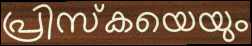
പ്രിസ്കയെയും